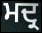
ਮਦ੍ਰ